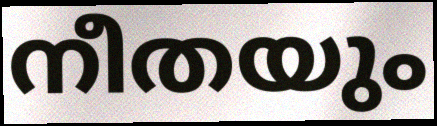
നീതയും